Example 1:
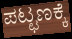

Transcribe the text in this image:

ಪಟ್ಟಣಕ್ಕೆ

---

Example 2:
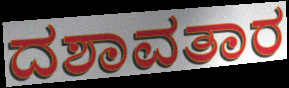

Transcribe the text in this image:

ದಶಾವತಾರ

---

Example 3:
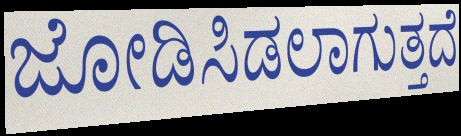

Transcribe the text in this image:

ಜೋಡಿಸಿಡಲಾಗುತ್ತದೆ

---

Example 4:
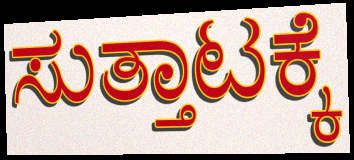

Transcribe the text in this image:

ಸುತ್ತಾಟಕ್ಕೆ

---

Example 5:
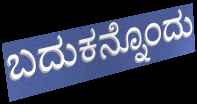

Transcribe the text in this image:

ಬದುಕನ್ನೊಂದು